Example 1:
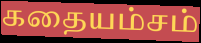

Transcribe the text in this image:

கதையம்சம்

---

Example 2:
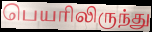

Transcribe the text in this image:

பெயரிலிருந்து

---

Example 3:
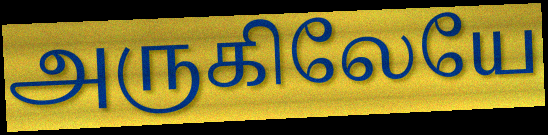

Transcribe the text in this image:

அருகிலேயே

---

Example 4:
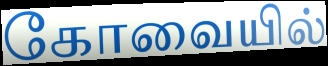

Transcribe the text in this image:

கோவையில்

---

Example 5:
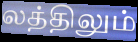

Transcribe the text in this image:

லத்திலும்